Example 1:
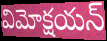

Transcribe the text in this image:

విమోక్షయన్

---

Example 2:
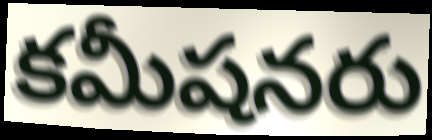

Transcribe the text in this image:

కమీషనరు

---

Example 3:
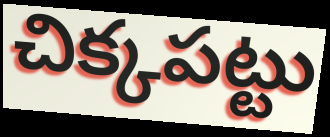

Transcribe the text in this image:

చిక్కపట్టు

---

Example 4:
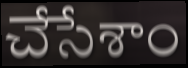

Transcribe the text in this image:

చేసేశాం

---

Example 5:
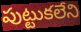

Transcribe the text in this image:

పుట్టుకలేని